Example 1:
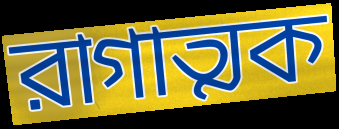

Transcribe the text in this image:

রাগাত্মক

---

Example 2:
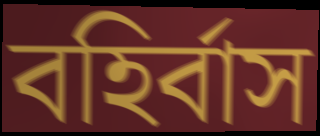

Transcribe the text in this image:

বহির্বাস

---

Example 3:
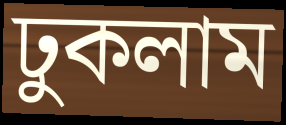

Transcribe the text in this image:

ঢুকলাম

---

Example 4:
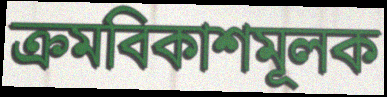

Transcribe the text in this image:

ক্রমবিকাশমূলক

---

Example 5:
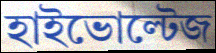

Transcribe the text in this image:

হাইভোল্টেজ